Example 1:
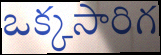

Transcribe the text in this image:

ఒక్కసారిగ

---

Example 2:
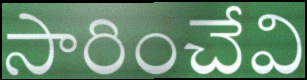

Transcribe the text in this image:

సారించేవి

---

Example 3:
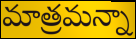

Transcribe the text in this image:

మాత్రమన్నా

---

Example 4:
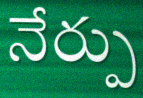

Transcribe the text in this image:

నేర్పు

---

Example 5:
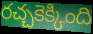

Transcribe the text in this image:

రచ్చకెక్కింది